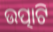
ଉତ୍ପାଟି